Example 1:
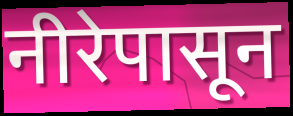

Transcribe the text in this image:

नीरेपासून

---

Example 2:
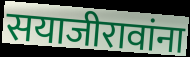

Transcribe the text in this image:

सयाजीरावांना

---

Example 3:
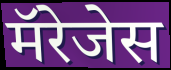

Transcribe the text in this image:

मॅरेजेस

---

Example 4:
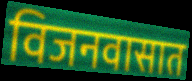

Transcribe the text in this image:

विजनवासात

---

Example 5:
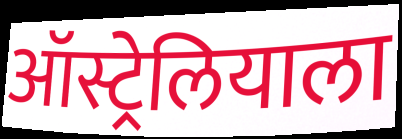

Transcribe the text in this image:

ऑस्ट्रेलियाला